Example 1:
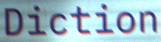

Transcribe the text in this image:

Diction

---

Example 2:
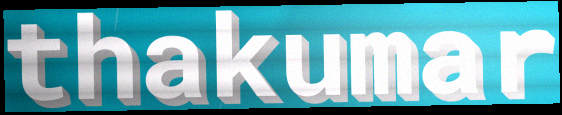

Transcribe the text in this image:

thakumar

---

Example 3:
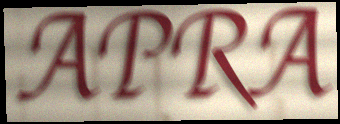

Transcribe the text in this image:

APRA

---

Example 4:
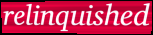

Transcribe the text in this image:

relinquished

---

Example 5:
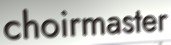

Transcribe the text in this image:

choirmaster